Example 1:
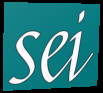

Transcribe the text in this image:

sei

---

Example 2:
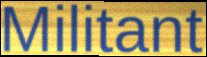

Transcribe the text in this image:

Militant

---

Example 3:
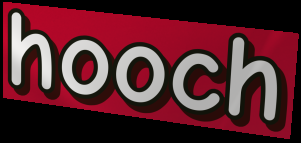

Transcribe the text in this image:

hooch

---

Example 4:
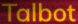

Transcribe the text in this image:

Talbot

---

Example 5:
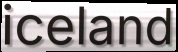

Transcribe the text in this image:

iceland